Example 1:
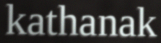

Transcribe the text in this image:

kathanak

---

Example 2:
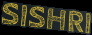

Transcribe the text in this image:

SISHRI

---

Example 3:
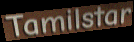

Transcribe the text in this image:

Tamilstar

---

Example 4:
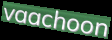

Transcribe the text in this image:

vaachoon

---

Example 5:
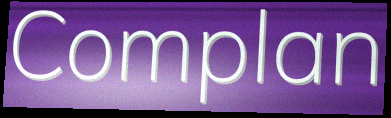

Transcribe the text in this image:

Complan